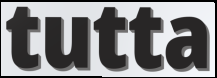
tutta